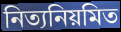
নিত্যনিয়মিত